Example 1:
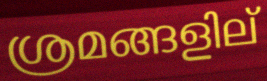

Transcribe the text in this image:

ശ്രമങ്ങളില്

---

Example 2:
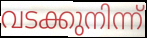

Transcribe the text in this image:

വടക്കുനിന്ന്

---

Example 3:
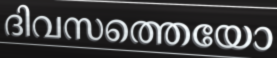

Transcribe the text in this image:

ദിവസത്തെയോ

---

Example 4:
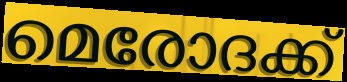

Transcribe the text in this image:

മെരോദക്ക്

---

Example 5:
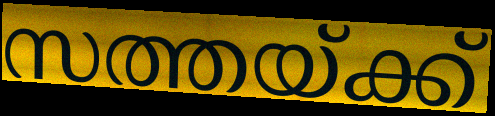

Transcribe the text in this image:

സത്തയ്ക്ക്